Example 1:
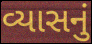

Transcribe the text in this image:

વ્યાસનું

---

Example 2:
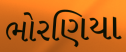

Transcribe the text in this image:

ભોરણિયા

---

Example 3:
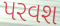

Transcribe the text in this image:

પરવશ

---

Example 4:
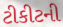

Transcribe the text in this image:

ટીકીટની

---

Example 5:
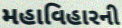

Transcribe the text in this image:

મહાવિહારની